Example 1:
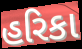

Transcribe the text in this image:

હરિકા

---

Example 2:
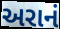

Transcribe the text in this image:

અરાનં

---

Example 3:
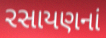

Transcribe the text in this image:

રસાયણનાં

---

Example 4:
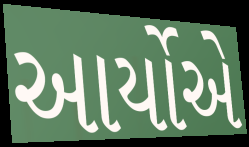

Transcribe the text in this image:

આર્યોએ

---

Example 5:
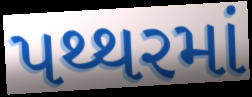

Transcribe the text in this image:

પથ્થરમાં